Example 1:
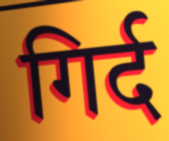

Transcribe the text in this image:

गिर्द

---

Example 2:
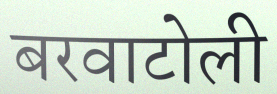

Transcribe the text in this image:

बरवाटोली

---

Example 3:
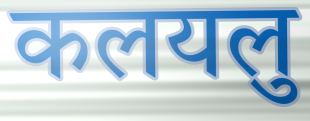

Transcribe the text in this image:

कलयलु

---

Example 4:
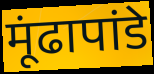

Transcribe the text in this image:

मूंढापांडे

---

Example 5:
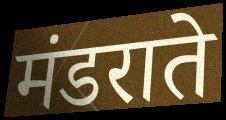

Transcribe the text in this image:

मंडराते